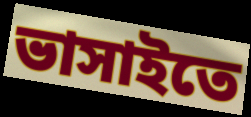
ভাসাইতে